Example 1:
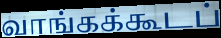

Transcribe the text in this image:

வாங்கக்கூடப்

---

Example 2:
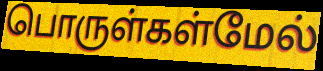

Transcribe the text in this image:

பொருள்கள்மேல்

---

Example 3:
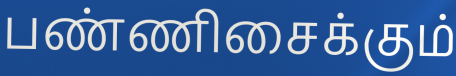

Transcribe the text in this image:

பண்ணிசைக்கும்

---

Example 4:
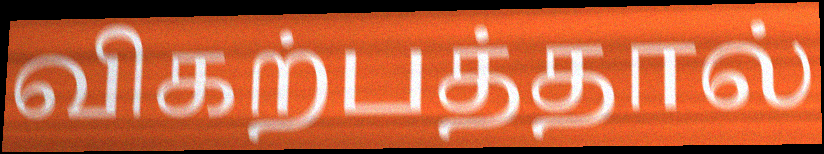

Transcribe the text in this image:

விகற்பத்தால்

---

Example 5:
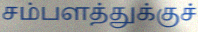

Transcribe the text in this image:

சம்பளத்துக்குச்